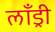
लॉंड्री